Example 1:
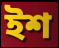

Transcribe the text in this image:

ইশ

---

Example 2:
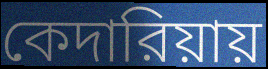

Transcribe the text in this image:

কেদারিয়ায়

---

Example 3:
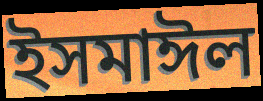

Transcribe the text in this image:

ইসমাঈল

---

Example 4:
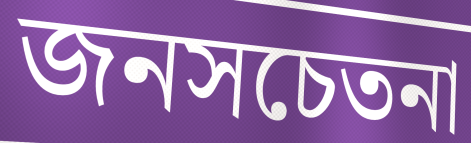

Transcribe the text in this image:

জনসচেতনা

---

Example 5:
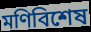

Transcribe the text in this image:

মণিবিশেষ